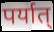
पर्यात्